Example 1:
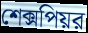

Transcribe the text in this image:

শেক্সপিয়র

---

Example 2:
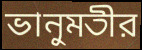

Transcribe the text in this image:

ভানুমতীর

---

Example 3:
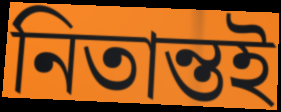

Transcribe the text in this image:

নিতান্তই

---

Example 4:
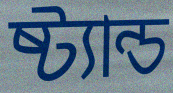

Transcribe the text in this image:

ষ্ট্যান্ড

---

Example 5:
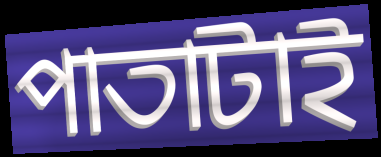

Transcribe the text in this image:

পাতাটাই